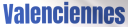
Valenciennes